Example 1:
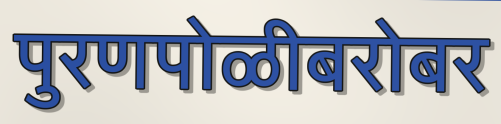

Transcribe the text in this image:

पुरणपोळीबरोबर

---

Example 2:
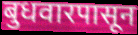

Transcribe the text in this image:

बुधवारपासून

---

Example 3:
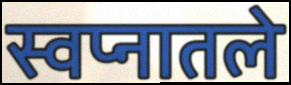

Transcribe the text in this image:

स्वप्नातले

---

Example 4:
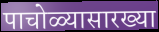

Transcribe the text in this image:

पाचोळ्यासारख्या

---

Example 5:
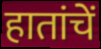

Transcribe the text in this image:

हातांचें